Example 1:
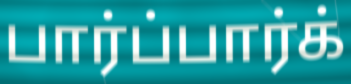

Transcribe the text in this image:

பார்ப்பார்க்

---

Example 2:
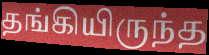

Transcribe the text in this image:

தங்கியிருந்த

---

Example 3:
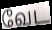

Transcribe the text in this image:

வேட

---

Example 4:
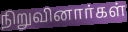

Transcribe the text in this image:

நிறுவினார்கள்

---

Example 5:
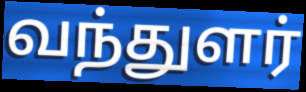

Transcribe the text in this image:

வந்துளர்